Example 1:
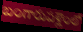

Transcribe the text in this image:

బంగారుపళ్లెంలో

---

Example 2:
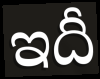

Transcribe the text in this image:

ఇదీ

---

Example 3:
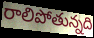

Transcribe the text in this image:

రాలిపోతున్నది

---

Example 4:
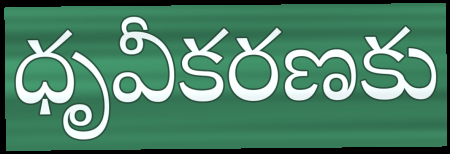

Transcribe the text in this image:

ధృవీకరణకు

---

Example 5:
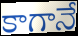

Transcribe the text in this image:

కాగానే